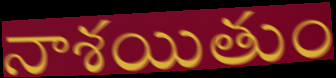
నాశయితుం